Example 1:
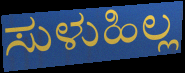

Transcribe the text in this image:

ಸುಳುಹಿಲ್ಲ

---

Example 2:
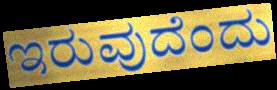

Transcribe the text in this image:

ಇರುವುದೆಂದು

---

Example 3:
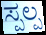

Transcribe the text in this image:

ಸ್ಪಲ್ಪ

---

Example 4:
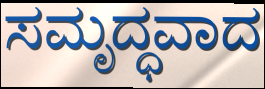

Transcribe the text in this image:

ಸಮೃದ್ಧವಾದ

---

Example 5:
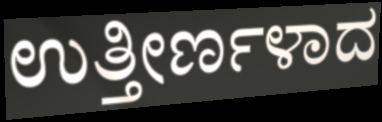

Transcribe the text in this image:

ಉತ್ತೀರ್ಣಳಾದ